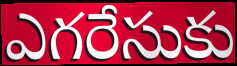
ఎగరేసుకు